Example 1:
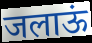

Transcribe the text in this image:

जलाऊं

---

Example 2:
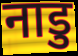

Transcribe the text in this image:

नाडु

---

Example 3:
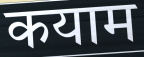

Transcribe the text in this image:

कयाम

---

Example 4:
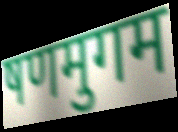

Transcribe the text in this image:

षणमुगम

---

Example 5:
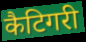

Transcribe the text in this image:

कैटिगरी